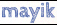
mayik